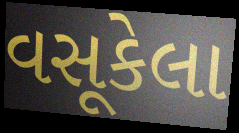
વસૂકેલા